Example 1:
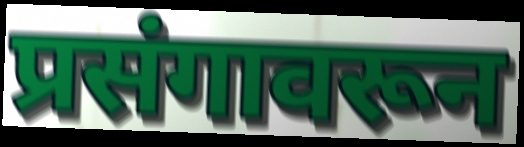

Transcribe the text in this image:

प्रसंगावरून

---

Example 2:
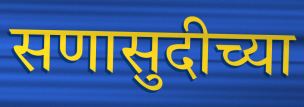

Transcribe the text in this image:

सणासुदीच्या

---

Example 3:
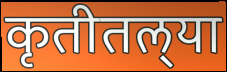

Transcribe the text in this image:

कृतीतल्या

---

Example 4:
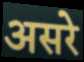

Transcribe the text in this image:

असरे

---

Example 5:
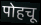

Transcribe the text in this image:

पोहचू